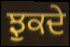
ਝੁਕਦੇ